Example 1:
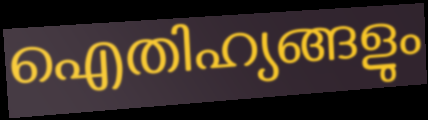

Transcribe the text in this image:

ഐതിഹ്യങ്ങളും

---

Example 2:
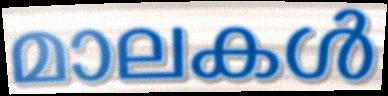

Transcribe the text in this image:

മാലകൾ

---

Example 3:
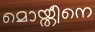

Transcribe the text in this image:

മൊയ്തീനെ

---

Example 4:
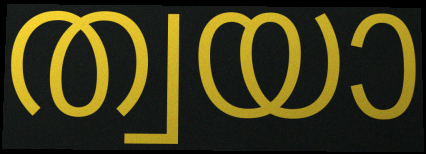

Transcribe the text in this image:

ത്വയാ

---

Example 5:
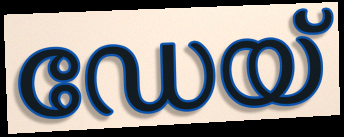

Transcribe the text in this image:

ഡേയ്